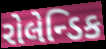
રોલેન્ડિક